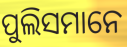
ପୁଲିସମାନେ